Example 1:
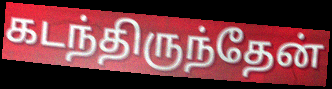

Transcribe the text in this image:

கடந்திருந்தேன்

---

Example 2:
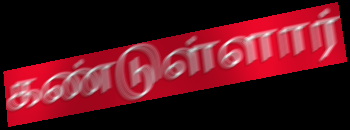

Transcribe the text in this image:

கண்டுள்ளார்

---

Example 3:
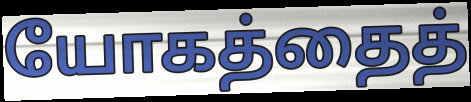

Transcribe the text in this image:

யோகத்தைத்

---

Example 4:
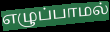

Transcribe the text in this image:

எழுப்பாமல்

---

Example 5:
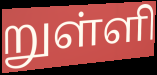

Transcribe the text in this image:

றுள்ளி